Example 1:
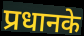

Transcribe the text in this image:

प्रधानके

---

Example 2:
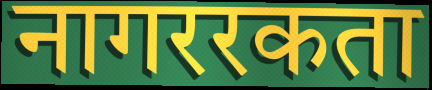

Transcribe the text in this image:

नागररकता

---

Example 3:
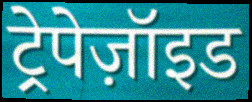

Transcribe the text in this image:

ट्रेपेज़ॉइड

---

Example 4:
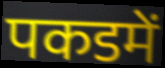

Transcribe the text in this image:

पकडमें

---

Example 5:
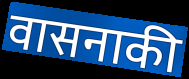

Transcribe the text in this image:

वासनाकी